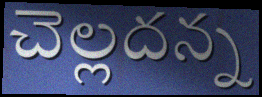
చెల్లదన్న